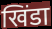
खिंडा